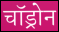
चॉड्रोन